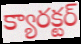
క్యారక్టర్